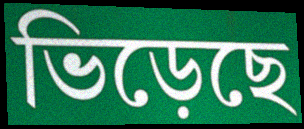
ভিড়েছে